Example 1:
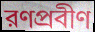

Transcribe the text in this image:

রণপ্রবীণ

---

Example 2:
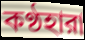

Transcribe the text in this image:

কণ্ঠহারা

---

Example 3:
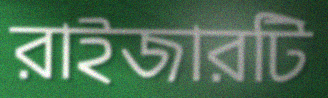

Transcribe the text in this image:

রাইজারটি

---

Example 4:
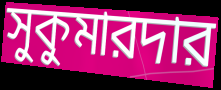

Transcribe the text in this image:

সুকুমারদার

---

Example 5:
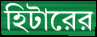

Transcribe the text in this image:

হিটারের